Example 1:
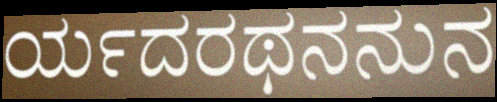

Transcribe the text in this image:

ರ್ಯದರಥನನುನ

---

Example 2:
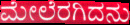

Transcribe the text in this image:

ಮೇಲೆರಗಿದನು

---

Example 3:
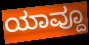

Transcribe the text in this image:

ಯಾವ್ದೂ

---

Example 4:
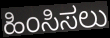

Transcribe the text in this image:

ಹಿಂಸಿಸಲು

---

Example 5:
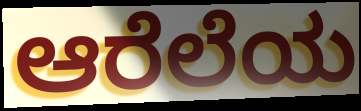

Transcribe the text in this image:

ಆರೆಲೆಯ